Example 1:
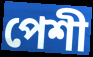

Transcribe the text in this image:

পেশী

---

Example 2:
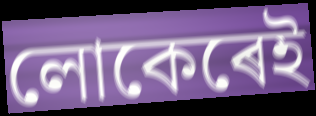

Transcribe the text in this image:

লোকেৰেই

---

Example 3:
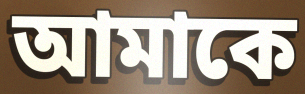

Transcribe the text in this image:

আমাকে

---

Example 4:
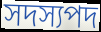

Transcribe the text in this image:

সদস্যপদ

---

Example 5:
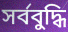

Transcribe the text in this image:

সৰ্ববুদ্ধি